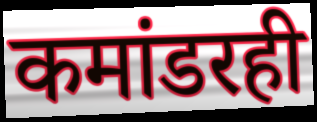
कमांडरही